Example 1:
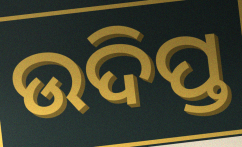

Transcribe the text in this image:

ଉଦିପ୍ତ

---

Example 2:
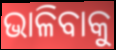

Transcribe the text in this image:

ଭାଳିବାକୁ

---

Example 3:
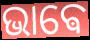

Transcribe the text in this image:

ଭାଵେ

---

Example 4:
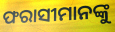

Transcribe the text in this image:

ଫରାସୀମାନଙ୍କୁ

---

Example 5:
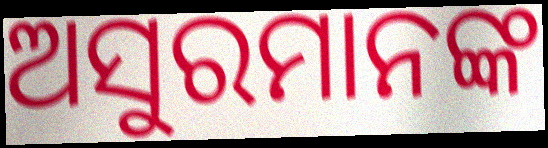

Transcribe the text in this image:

ଅସୁରମାନଙ୍କ